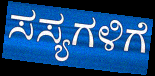
ಸಸ್ಯಗಳಿಗೆ